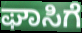
ಘಾಸಿಗೆ